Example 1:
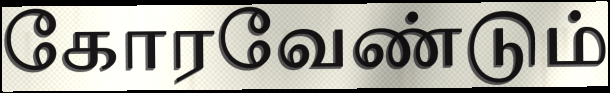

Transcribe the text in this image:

கோரவேண்டும்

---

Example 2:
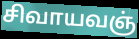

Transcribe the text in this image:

சிவாயவஞ்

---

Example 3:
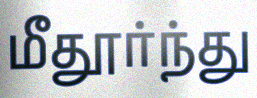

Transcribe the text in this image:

மீதூர்ந்து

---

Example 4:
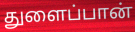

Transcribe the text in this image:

துளைப்பான்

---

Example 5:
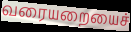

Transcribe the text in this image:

வரையறையைச்